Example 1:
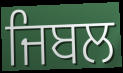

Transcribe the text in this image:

ਜਿਬਲ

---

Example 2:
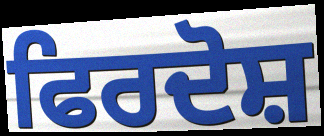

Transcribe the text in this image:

ਫਿਰਦੋਸ਼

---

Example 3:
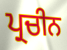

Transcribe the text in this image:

ਪ੍ਰਚੀਨ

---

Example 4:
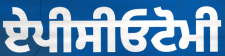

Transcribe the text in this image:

ਏਪੀਸੀਓਟੋਮੀ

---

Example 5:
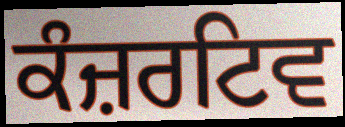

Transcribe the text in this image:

ਕੰਜ਼ਰਟਿਵ